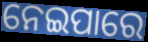
ନେଇପାରେ